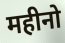
महीनो